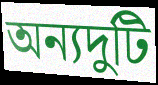
অন্যদুটি